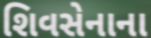
શિવસેનાના